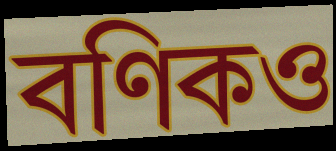
বণিকও